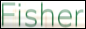
Fisher